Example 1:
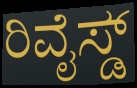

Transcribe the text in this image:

ರಿವೈಸ್ಡ್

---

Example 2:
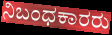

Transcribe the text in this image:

ನಿಬಂಧಕಾರರು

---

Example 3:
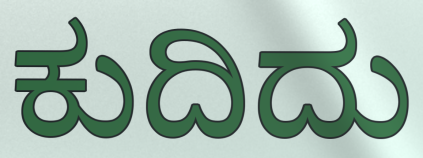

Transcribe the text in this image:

ಕುದಿದು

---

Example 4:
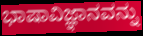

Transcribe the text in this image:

ಭಾಷಾವಿಜ್ಞಾನವನ್ನು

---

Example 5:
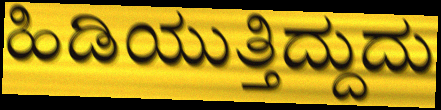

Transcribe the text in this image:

ಹಿಡಿಯುತ್ತಿದ್ದುದು